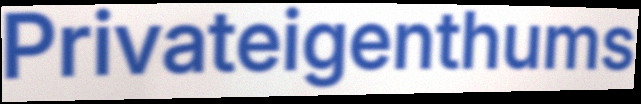
Privateigenthums